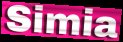
Simia